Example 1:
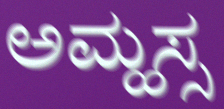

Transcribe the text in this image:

ಅಮ್ಹಸ್ಸ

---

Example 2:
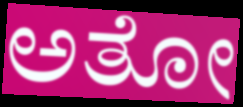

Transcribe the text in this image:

ಅತೋ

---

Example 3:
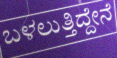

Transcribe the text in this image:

ಬಳಲುತ್ತಿದ್ದೇನೆ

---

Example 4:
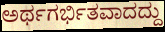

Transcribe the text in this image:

ಅರ್ಥಗರ್ಭಿತವಾದದ್ದು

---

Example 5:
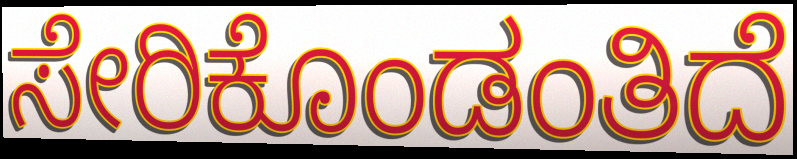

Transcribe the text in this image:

ಸೇರಿಕೊಂಡಂತಿದೆ